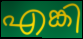
എങ്കി